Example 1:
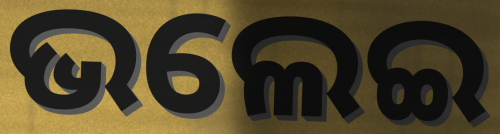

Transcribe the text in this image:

ଭଲେଇ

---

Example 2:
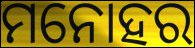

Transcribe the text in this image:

ମନୋହର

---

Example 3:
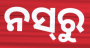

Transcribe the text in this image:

ନସ୍‍ରୁ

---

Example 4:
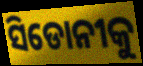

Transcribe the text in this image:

ସିଡୋନୀକୁ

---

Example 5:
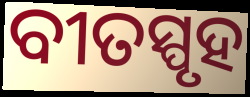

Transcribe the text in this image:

ବୀତସ୍ପୃହ